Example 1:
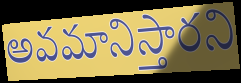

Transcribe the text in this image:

అవమానిస్తారని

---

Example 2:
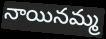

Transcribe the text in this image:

నాయినమ్మ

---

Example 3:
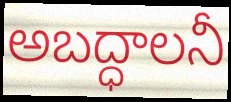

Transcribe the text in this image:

అబద్ధాలనీ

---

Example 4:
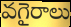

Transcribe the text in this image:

వగైరాలు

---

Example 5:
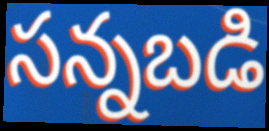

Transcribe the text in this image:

సన్నబడి